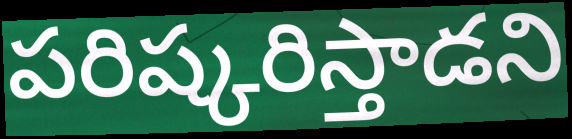
పరిష్కరిస్తాడని